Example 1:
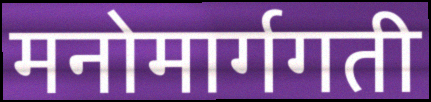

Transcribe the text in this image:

मनोमार्गगती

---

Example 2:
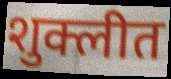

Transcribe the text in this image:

शुक्लीत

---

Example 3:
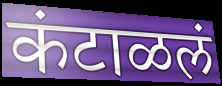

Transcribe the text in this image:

कंटाळलं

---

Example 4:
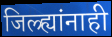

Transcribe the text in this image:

जिल्ह्यांनाही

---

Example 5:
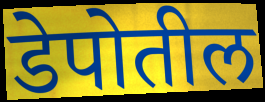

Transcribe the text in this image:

डेपोतील